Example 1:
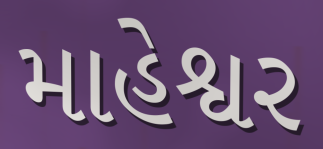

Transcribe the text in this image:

માહેશ્વર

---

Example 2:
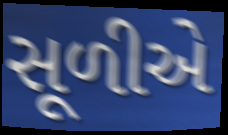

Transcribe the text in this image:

સૂળીએ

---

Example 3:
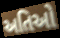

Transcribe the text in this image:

અતિઓ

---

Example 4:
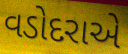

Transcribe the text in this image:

વડોદરાએ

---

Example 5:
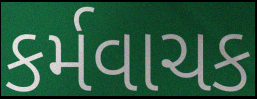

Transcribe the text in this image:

કર્મવાચક